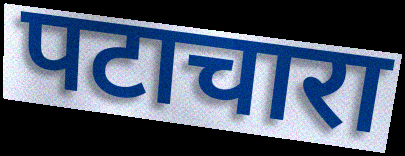
पटाचारा